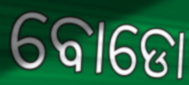
ବୋଡୋ